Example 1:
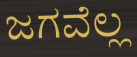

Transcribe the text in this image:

ಜಗವೆಲ್ಲ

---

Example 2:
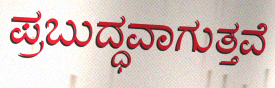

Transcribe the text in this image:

ಪ್ರಬುದ್ಧವಾಗುತ್ತವೆ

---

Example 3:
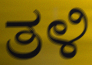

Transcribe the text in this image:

ತಳಿ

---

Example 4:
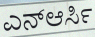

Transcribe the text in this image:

ಎನ್ಆರ್ಸಿ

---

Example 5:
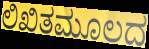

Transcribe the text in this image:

ಲಿಖಿತಮೂಲದ